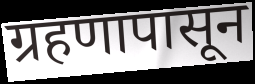
ग्रहणापासून